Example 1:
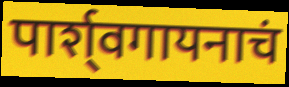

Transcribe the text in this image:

पार्श्वगायनाचं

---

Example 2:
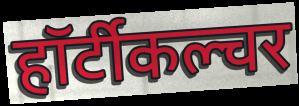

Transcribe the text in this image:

हॉर्टीकल्चर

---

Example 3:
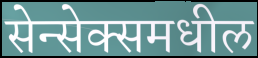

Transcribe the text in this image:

सेन्सेक्समधील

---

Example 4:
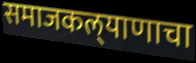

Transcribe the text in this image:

समाजकल्याणाचा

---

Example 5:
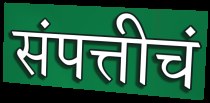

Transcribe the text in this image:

संपत्तीचं